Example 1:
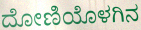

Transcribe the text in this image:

ದೋಣಿಯೊಳಗಿನ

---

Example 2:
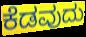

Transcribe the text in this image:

ಕೆಡವುದು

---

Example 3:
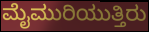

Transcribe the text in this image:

ಮೈಮುರಿಯುತ್ತಿರು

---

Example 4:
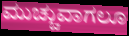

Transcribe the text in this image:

ಮುಚ್ಚುವಾಗಲೂ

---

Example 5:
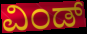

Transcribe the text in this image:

ವಿಂಡ್